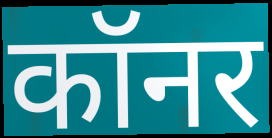
कॉनर